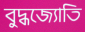
বুদ্ধজ্যোতি